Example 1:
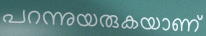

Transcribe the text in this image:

പറന്നുയരുകയാണ്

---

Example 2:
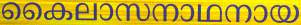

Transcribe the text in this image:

കൈലാസനാഥനായ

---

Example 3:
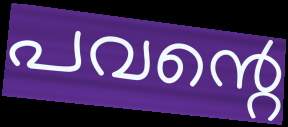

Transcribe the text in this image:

പവന്റെ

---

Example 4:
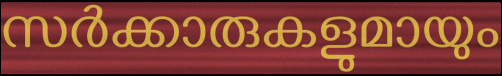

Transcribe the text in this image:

സർക്കാരുകളുമായും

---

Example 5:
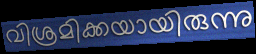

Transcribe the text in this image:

വിശ്രമിക്കയായിരുന്നു